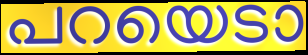
പറയെടാ